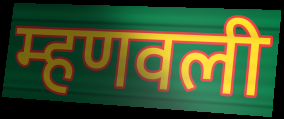
म्हणवली